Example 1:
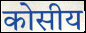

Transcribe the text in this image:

कोसीय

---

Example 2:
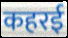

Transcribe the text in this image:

कहरई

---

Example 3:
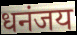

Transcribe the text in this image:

धनंजय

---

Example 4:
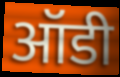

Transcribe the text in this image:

ऑडी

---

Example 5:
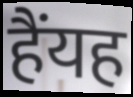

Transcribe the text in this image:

हैंयह